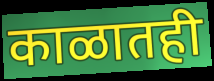
काळातही